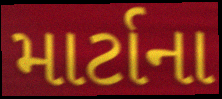
માર્ટાના